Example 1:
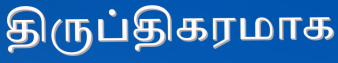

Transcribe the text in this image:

திருப்திகரமாக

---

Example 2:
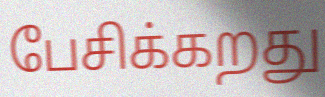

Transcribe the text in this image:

பேசிக்கறது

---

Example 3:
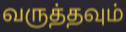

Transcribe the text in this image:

வருத்தவும்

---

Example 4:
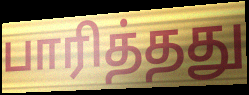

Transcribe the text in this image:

பாரித்தது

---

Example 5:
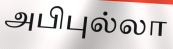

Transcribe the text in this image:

அபிபுல்லா